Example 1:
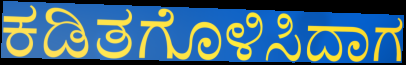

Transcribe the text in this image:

ಕಡಿತಗೊಳಿಸಿದಾಗ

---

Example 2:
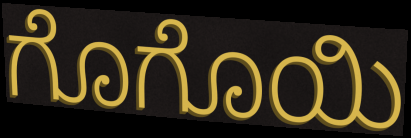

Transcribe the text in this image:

ಗೊಗೊಯಿ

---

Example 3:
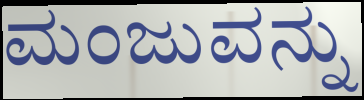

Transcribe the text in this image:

ಮಂಜುವನ್ನು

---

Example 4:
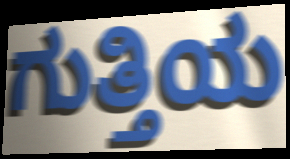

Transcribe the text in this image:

ಗುತ್ತಿಯ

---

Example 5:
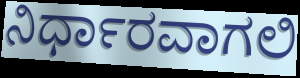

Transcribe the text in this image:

ನಿರ್ಧಾರವಾಗಲಿ